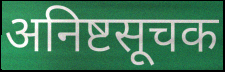
अनिष्टसूचक